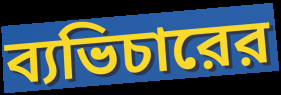
ব্যভিচারের